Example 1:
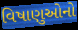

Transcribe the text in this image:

વિષાણુઓનો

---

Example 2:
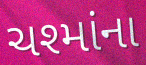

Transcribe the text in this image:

ચશ્માંના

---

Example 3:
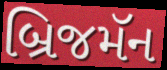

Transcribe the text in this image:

બ્રિજમૅન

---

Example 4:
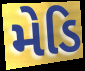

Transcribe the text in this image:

મેડિ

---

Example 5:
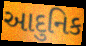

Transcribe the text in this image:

આદુનિક